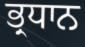
ਭ੍ਰਧਾਨ